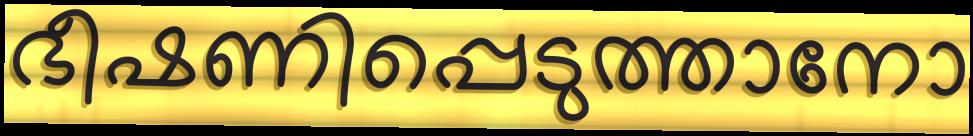
ഭീഷണിപ്പെടുത്താനോ